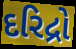
દરિદ્રો